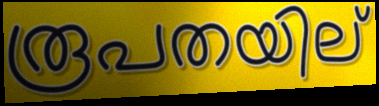
രൂപതയില്